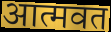
आत्मवत